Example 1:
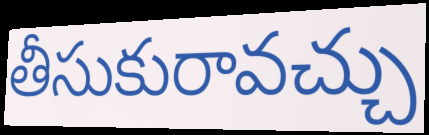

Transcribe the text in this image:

తీసుకురావచ్చు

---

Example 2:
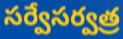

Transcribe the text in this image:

సర్వేసర్వత్ర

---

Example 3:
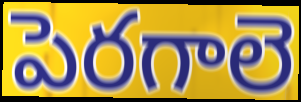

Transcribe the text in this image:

పెరగాలె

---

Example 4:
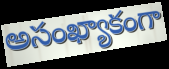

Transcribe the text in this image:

అసంఖ్యాకంగా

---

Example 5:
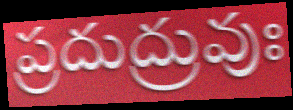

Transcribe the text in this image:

ప్రదుద్రువుః